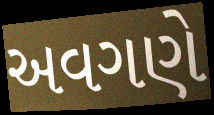
અવગણે